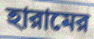
হারামের